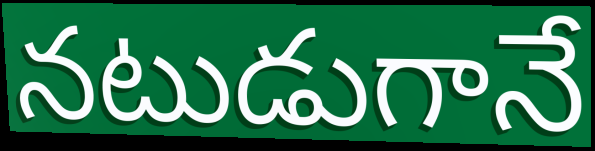
నటుడుగానే